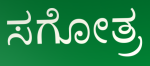
ಸಗೋತ್ರ